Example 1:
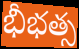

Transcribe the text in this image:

భీభత్స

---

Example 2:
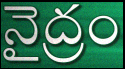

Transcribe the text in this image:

నైద్రం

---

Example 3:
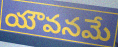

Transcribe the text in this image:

యౌవనమే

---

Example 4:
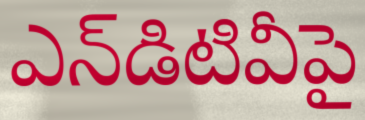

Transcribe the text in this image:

ఎన్‌డిటివీపై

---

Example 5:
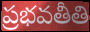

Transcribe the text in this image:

ప్రభవతీతి